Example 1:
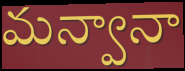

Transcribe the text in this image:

మన్వానా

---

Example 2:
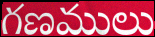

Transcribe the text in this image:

గణములు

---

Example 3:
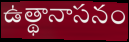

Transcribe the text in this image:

ఉత్థానాసనం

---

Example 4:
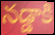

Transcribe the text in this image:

నడ్డాకి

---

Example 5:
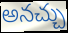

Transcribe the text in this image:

అనచ్చు